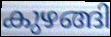
കുഴങ്ങി